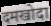
दमखोदा